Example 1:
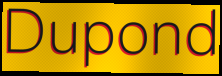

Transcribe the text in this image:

Dupond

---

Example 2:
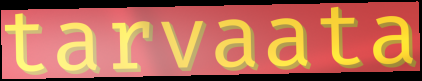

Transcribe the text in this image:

tarvaata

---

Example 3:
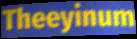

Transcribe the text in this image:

Theeyinum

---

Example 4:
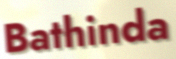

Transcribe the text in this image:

Bathinda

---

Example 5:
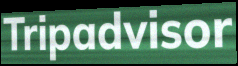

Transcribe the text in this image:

Tripadvisor